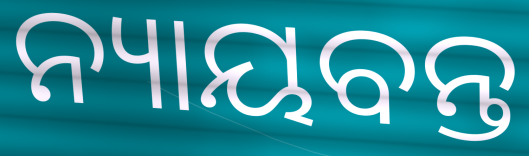
ନ୍ୟାୟବନ୍ତ